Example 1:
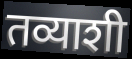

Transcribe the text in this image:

तव्याशी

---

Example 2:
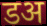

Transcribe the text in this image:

डअ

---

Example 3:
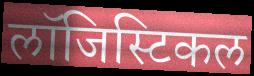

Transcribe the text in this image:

लॉजिस्टिकल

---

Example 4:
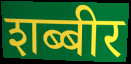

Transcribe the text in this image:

शब्बीर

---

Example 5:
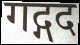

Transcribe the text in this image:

गद्गद